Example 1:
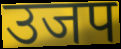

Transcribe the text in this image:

उजप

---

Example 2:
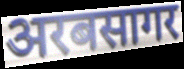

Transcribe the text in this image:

अरबसागर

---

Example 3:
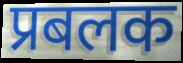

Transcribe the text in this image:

प्रबलक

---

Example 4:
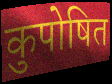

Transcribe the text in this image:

कुपोषित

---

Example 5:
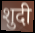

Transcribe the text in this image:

शुदी